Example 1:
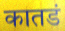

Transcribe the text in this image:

कातडं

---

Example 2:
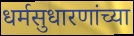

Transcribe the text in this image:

धर्मसुधारणांच्या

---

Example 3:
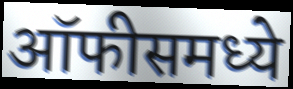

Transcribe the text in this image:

ऑफीसमध्ये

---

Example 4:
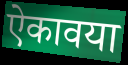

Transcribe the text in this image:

ऐकावया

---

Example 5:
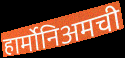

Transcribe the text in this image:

हार्मोनिअमची